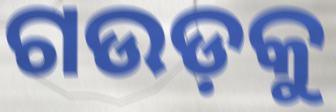
ଗଉଡ଼କୁ